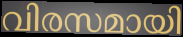
വിരസമായി